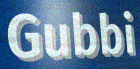
Gubbi